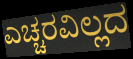
ಎಚ್ಚರವಿಲ್ಲದ